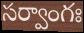
సర్వాంగః